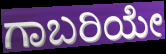
ಗಾಬರಿಯೇ